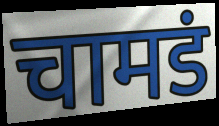
चामडं